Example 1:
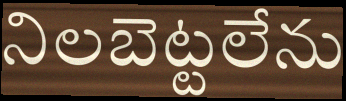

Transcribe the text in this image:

నిలబెట్టలేను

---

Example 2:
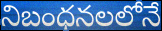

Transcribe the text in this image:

నిబంధనలలోనే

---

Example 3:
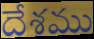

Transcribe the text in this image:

దేశము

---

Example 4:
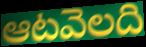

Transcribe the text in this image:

ఆటవెలది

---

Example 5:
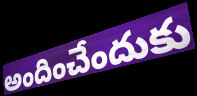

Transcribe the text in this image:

అందించేందుకు